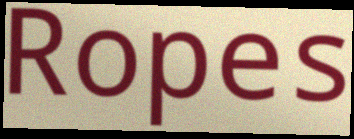
Ropes